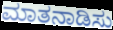
ಮಾತನಾಡಿಸು